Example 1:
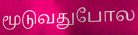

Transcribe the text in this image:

மூடுவதுபோல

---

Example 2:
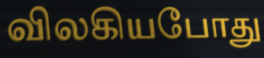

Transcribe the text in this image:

விலகியபோது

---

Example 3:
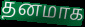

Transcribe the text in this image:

தனமாக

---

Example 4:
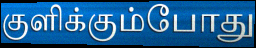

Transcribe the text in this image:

குளிக்கும்போது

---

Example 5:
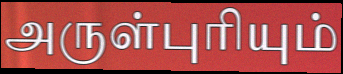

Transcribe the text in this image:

அருள்புரியும்